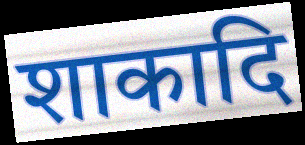
शाकादि